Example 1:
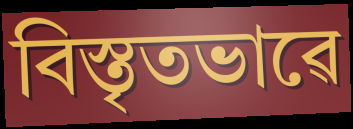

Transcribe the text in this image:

বিস্তৃতভাৱে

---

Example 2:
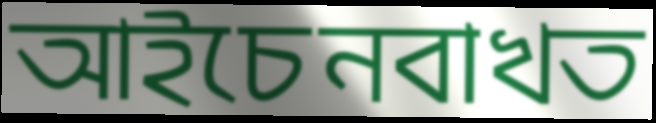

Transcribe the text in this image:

আইচেনবাখত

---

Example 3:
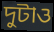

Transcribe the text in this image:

দুটাও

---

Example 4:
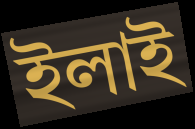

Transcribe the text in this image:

ইলাই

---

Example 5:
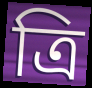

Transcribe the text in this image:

ত্ৰি